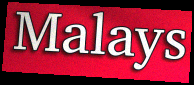
Malays